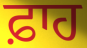
ਫ਼ਾਹ